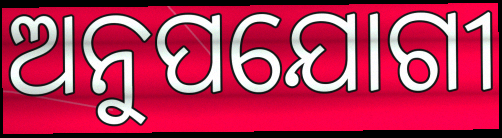
ଅନୁପଯୋଗୀ